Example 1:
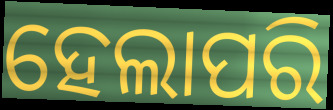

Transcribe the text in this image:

ହେଲାପରି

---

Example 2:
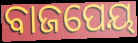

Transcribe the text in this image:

ବାଜପେୟ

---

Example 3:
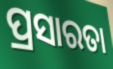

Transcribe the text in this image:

ପ୍ରସାରତା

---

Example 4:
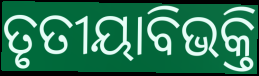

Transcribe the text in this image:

ତୃତୀୟାବିଭକ୍ତି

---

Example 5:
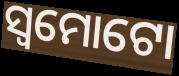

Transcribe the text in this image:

ସ୍ୱମୋଟୋ